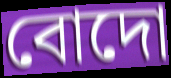
বোদো